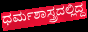
ಧರ್ಮಶಾಸ್ತ್ರದಲ್ಲಿದ್ದ